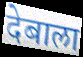
देबाला